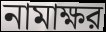
নামাক্ষর